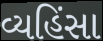
વ્યહિંસા